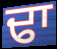
ਢਾ